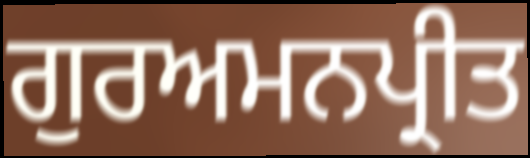
ਗੁਰਅਮਨਪ੍ਰੀਤ